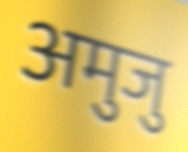
अमुजु